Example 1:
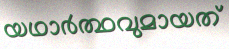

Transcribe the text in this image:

യഥാർത്ഥവുമായത്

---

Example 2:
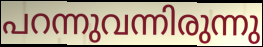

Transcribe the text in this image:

പറന്നുവന്നിരുന്നു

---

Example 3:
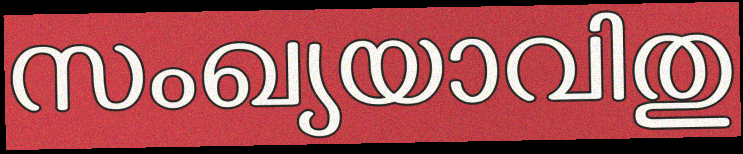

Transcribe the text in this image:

സംഖ്യയാവിതു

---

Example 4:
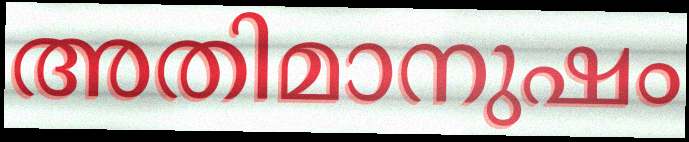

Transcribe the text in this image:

അതിമാനുഷം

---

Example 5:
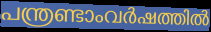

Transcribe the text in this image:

പന്ത്രണ്ടാംവർഷത്തിൽ